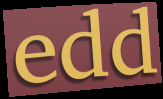
edd